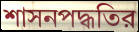
শাসনপদ্ধতির